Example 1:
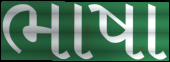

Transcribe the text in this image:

ભાષા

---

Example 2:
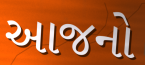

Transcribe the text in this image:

આજનો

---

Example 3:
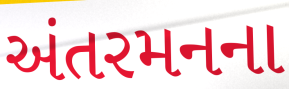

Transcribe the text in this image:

અંતરમનના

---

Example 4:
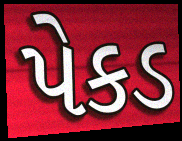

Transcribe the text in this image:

પેકડ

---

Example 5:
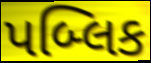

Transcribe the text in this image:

પબ્લિક